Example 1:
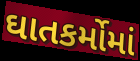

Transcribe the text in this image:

ઘાતકર્મોમાં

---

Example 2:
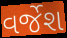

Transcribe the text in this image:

વર્જેશ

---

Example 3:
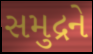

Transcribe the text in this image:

સમુદ્રને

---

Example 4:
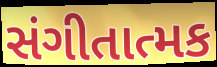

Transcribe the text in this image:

સંગીતાત્મક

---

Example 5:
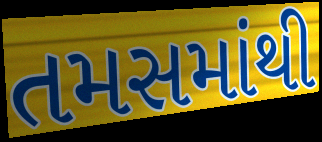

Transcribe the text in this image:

તમસમાંથી